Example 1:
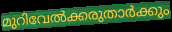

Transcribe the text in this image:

മുറിവേൽക്കരുതാർക്കും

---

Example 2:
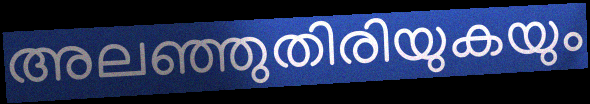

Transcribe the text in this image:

അലഞ്ഞുതിരിയുകയും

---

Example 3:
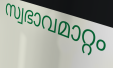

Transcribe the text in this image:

സ്വഭാവമാറ്റം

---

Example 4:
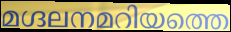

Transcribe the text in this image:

മഗ്ദലനമറിയത്തെ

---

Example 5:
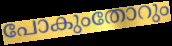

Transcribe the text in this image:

പോകുംതോറും